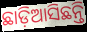
ଛାଡ଼ିଆସିଛନ୍ତି